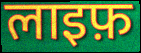
लाइफ़